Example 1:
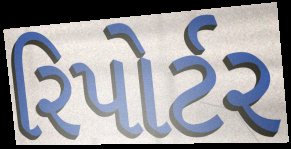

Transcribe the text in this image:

રિપોર્ટર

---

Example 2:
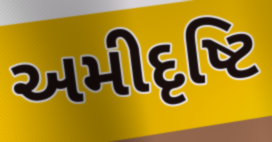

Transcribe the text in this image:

અમીદૃષ્ટિ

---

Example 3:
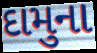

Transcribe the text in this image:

દામુના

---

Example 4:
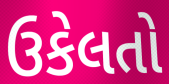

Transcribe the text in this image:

ઉકેલતો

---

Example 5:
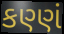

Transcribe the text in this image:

કણ્ણં